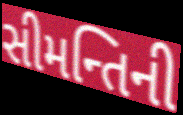
સીમન્તિની